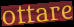
ottare